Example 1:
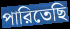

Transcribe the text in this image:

পারিতেছি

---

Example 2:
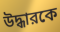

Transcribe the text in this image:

উদ্ধারকে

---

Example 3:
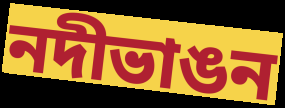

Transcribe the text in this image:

নদীভাঙন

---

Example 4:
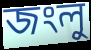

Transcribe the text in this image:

জংলু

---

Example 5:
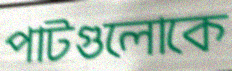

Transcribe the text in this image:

পাটগুলোকে